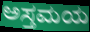
ಅಸ್ತಮಯ